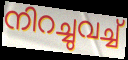
നിറച്ചുവച്ച്